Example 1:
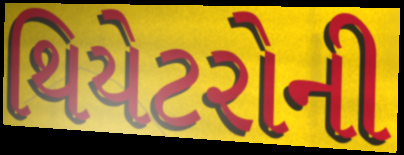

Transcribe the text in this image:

થિયેટરોની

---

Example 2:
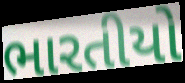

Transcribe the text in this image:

ભારતીયો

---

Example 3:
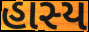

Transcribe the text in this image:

હાસ્ય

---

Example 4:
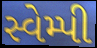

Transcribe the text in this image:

સ્વેમ્પી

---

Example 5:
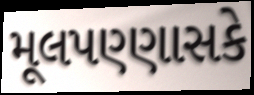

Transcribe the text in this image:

મૂલપણ્ણાસકે